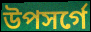
উপসর্গে